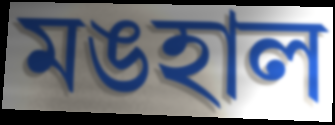
মঙহাল